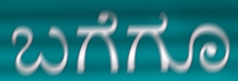
ಬಗೆಗೂ